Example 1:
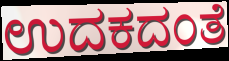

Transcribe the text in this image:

ಉದಕದಂತೆ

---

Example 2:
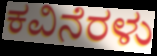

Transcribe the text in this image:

ಕವಿನೆರಳು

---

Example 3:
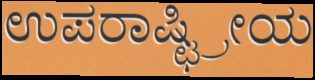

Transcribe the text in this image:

ಉಪರಾಷ್ಟ್ರೀಯ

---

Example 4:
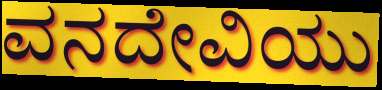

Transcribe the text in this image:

ವನದೇವಿಯು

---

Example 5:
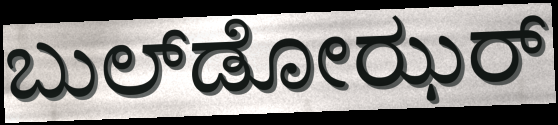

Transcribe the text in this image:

ಬುಲ್‌ಡೋಝರ್